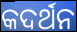
କଦର୍ଥନ